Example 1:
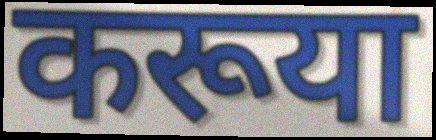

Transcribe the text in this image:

करूया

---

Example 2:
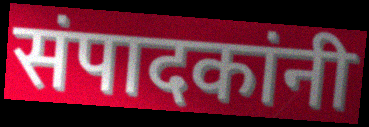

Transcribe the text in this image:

संपादकांनी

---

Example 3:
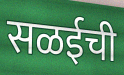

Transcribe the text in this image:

सळईची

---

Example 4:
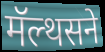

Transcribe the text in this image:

मॅल्थसने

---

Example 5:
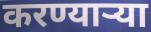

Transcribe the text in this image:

करण्यार्‍या